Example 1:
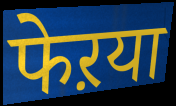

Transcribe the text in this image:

फेऱया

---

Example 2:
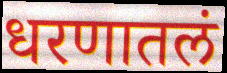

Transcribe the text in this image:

धरणातलं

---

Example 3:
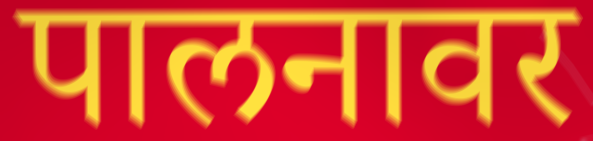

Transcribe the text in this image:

पालनावर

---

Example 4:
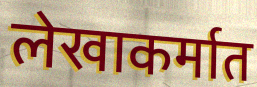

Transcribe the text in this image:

लेखाकर्मात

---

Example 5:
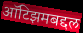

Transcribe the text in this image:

ऑटिझमबद्दल